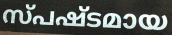
സ്പഷ്ടമായ